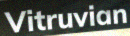
Vitruvian